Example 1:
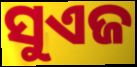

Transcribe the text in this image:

ସୁଏଜ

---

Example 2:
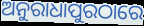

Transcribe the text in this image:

ଅନୁରାଧାପୁରଠାରେ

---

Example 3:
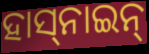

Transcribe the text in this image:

ହାସ୍‌ନାଇନ୍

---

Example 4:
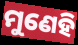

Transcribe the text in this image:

ମୁଣେହି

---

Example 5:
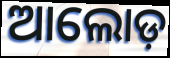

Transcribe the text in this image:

ଆଲୋଡ଼